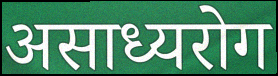
असाध्यरोग